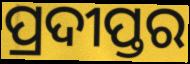
ପ୍ରଦୀପ୍ତର